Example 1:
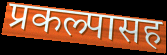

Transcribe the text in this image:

प्रकल्पासह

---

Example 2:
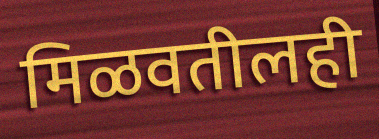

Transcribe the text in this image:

मिळवतीलही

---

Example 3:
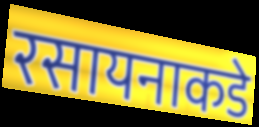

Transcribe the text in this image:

रसायनाकडे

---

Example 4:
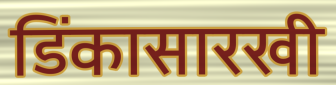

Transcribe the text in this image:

डिंकासारखी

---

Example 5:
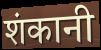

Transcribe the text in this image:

शंकानी